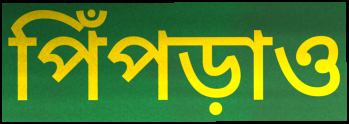
পিঁপড়াও